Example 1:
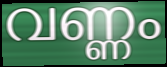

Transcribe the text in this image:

വണ്ണം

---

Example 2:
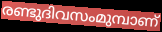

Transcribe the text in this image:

രണ്ടുദിവസംമുമ്പാണ്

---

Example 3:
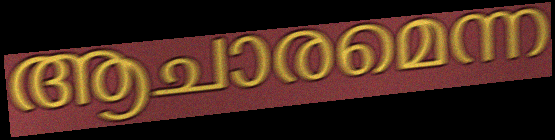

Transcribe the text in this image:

ആചാരമെന്ന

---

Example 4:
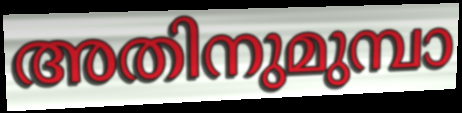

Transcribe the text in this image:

അതിനുമുമ്പാ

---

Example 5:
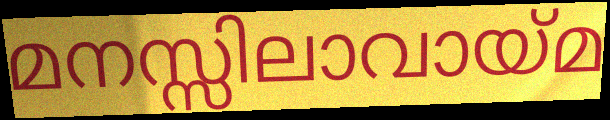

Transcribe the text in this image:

മനസ്സിലാവായ്മ